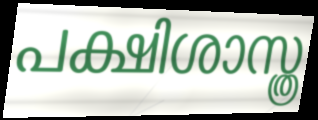
പക്ഷിശാസ്ത്ര